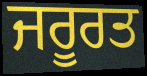
ਜਰੂਰਤ